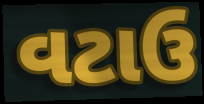
વટાઉ